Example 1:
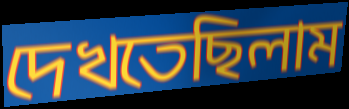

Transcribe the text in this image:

দেখতেছিলাম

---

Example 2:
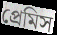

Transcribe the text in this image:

প্রেমিস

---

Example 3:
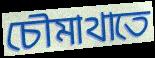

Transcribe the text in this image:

চৌমাথাতে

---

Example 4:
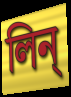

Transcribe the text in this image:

লিন্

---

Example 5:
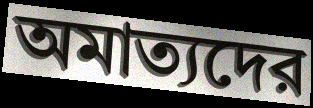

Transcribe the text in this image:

অমাত্যদের